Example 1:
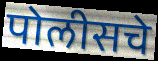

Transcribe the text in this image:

पोलीसचे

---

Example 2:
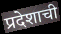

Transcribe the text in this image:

प्रदेशाची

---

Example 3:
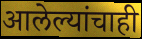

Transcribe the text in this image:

आलेल्यांचाही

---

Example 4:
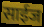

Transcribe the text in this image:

साईज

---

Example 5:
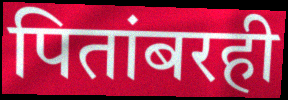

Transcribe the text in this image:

पितांबरही